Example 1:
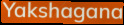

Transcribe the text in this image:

Yakshagana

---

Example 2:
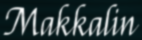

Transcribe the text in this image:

Makkalin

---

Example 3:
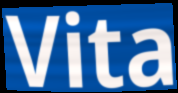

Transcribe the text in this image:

Vita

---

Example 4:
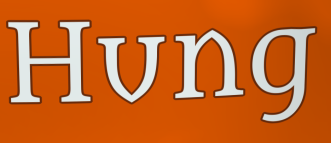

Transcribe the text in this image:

Hung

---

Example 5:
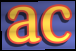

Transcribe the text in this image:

ac